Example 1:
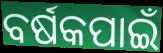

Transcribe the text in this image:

ବର୍ଷକପାଇଁ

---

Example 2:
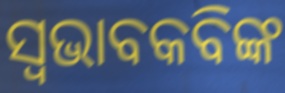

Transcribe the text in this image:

ସ୍ଵଭାବକବିଙ୍କ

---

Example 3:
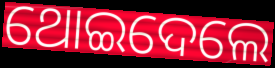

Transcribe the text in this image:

ଥୋଇଦେଲେ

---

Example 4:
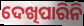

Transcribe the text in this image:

ଦେଖିପାରିନି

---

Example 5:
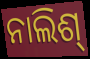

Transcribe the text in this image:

ନାଲିଶ୍